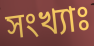
সংখ্যাঃ